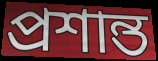
প্ৰশান্ত